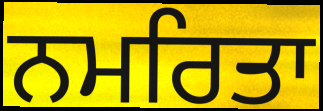
ਨਮਰਿਤਾ